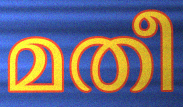
മതീ